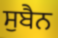
ਸੁਬੈਨ